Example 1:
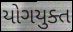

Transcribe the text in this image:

યોગયુક્ત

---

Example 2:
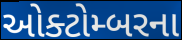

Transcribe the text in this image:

ઓક્ટોમ્બરના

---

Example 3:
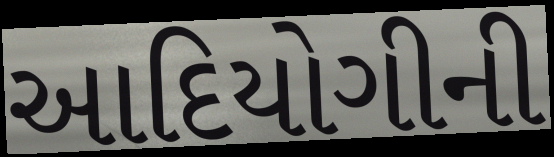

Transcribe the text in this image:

આદિયોગીની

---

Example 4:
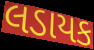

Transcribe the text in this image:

લડાયક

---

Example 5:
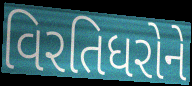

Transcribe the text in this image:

વિરતિધરોને